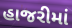
હાજરીમાં